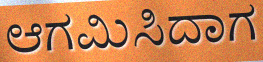
ಆಗಮಿಸಿದಾಗ